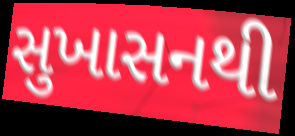
સુખાસનથી